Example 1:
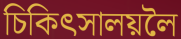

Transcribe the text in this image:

চিকিৎসালয়লৈ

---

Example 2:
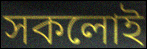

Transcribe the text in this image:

সকলোই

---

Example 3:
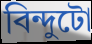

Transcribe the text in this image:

বিন্দুটো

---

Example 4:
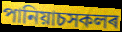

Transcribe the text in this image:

পানিয়াচসকলৰ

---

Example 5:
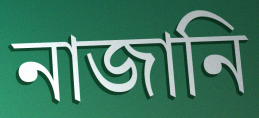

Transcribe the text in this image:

নাজানি